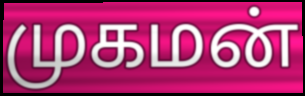
முகமன்